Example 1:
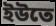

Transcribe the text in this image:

ইউতে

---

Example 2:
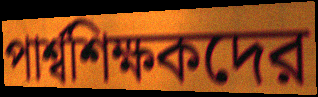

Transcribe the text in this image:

পার্শ্বশিক্ষকদের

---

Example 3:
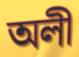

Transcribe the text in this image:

অলী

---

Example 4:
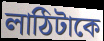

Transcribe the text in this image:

লাঠিটাকে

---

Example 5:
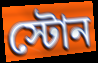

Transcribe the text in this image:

স্টোন